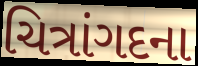
ચિત્રાંગદના